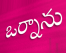
ఒర్నాను